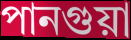
পানগুয়া